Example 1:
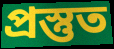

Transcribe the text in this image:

প্রস্তুত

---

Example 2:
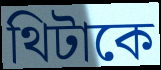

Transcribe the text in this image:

থিটাকে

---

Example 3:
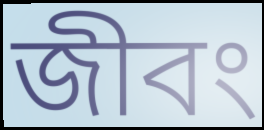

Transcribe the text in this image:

জীবং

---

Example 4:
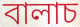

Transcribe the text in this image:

বালাচ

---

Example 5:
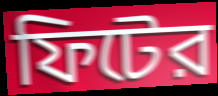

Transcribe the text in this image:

ফিটের